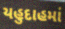
યહુદાહમાં